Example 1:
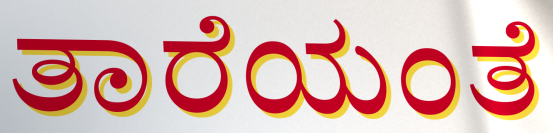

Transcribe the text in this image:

ತಾರೆಯಂತೆ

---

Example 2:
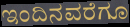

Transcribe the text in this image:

ಇಂದಿನವರೆಗೂ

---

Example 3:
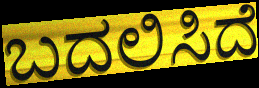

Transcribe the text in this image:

ಬದಲಿಸಿದೆ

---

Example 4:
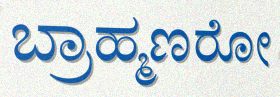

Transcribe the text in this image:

ಬ್ರಾಹ್ಮಣರೋ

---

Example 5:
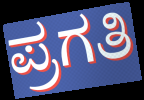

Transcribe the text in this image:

ಪ್ರಗತಿ